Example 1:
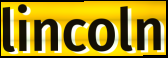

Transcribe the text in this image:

lincoln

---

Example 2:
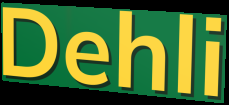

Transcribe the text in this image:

Dehli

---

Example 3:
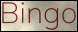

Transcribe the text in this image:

Bingo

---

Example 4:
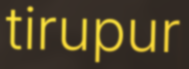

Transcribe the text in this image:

tirupur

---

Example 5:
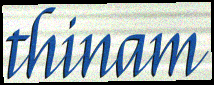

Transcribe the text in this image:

thinam